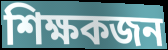
শিক্ষকজন